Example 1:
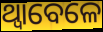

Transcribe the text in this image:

ଥ୍ବାବେଳେ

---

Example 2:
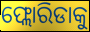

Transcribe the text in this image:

ଫ୍ଲୋରିଡାକୁ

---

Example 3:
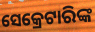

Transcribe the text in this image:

ସେକ୍ରେଟାରିଙ୍କ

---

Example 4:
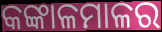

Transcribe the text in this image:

କଙ୍କାଳମାଳର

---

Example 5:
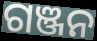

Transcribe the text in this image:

ଗଞ୍ଜନ